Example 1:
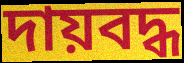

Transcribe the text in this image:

দায়বদ্ধ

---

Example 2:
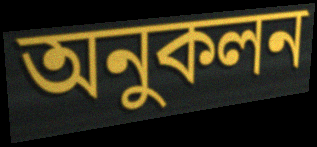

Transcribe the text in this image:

অনুকলন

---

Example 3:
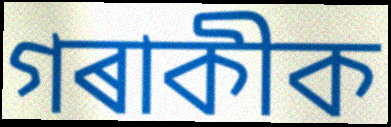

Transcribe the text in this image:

গৰাকীক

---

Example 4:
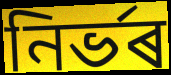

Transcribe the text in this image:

নিৰ্ভৰ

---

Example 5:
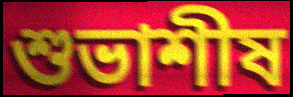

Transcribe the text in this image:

শুভাশীষ